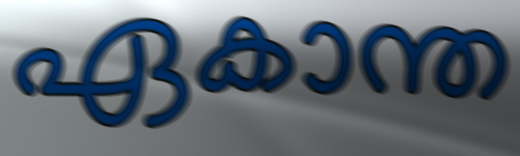
ഏകാന്ത